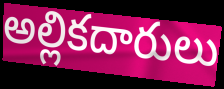
అల్లికదారులు